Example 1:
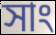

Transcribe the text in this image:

সাং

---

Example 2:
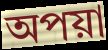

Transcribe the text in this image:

অপয়া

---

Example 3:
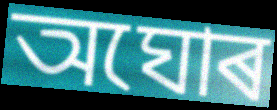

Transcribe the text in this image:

অঘোৰ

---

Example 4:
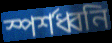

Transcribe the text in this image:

স্পৰ্শধ্বনি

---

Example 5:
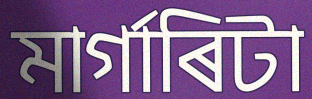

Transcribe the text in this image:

মাৰ্গাৰিটা